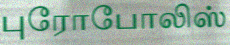
புரோபோலிஸ்